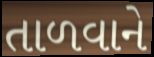
તાળવાને